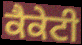
ਕੈਕੇਟੀ